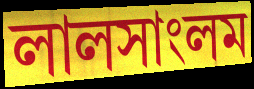
লালসাংলম